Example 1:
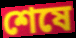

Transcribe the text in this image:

শেষে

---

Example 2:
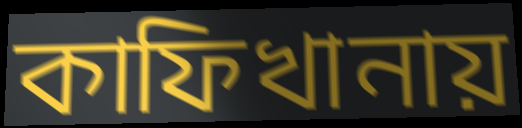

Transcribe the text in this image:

কাফিখানায়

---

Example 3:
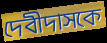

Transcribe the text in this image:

দেবীদাসকে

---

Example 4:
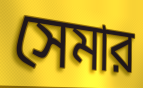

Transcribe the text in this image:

সেমার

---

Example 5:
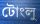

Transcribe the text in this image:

টোংলু